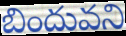
బిందువని